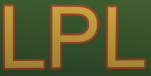
LPL